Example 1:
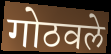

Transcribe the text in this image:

गोठवले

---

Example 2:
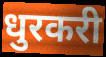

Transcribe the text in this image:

धुरकरी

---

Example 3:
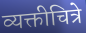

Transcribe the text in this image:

व्यक्तीचित्रे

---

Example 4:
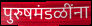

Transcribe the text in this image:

पुरुषमंडळींना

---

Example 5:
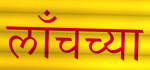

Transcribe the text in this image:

लाँचच्या